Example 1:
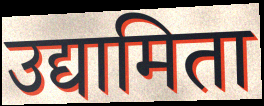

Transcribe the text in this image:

उद्यामिता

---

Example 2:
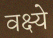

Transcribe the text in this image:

वक्ष्ये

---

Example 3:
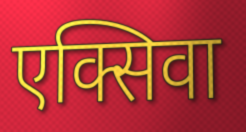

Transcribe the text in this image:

एक्सिवा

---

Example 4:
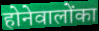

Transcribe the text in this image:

होनेवालोंका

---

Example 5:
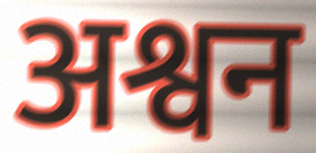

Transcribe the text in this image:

अश्वन